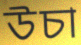
উচা